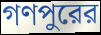
গণপুরের